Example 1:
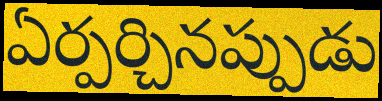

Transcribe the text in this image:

ఏర్పర్చినప్పుడు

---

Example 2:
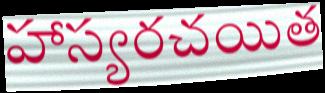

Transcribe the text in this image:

హాస్యరచయిత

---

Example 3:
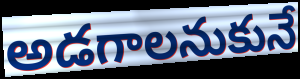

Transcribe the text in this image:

అడగాలనుకునే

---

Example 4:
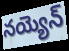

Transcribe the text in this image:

నయ్యెన్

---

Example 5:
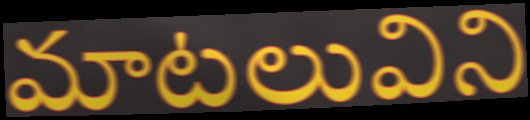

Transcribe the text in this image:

మాటలువిని